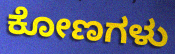
ಕೋಣಗಳು